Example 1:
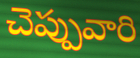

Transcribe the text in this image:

చెప్పువారి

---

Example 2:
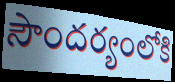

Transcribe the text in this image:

సౌందర్యంలోకి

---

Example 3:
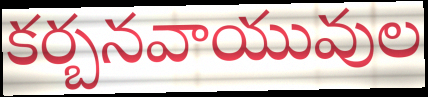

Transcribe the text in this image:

కర్బనవాయువుల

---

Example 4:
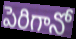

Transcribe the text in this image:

పెరిగానో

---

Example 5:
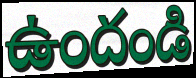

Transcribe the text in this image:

ఉందండి